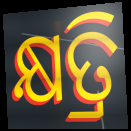
କ୍ଷତ୍ରି